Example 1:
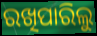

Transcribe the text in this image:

ରଖିପାରିଲୁ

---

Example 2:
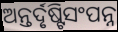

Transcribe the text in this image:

ଅନ୍ତର୍ଦୃଷ୍ଟିସଂପନ୍ନ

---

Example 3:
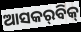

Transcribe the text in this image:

ଆସକର୍‌ବିକ୍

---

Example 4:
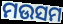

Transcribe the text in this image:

ମଉସମ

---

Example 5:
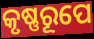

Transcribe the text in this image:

କୃଷ୍ଣରୂପେ